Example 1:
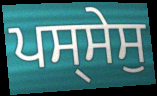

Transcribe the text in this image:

ਪਸ੍ਸੇਸੁ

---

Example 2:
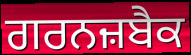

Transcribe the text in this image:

ਗਰਨਜ਼ਬੈਕ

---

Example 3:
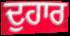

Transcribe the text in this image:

ਦੁਹਾਰ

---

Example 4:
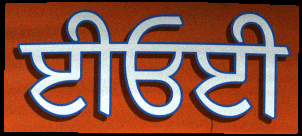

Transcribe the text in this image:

ਈਓਈ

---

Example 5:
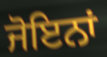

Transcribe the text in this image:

ਜੋਇਨਾਂ